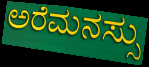
ಅರೆಮನಸ್ಸು